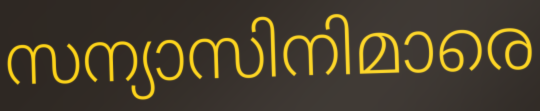
സന്യാസിനിമാരെ